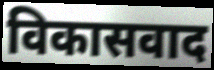
विकासवाद